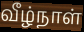
வீழ்நாள்